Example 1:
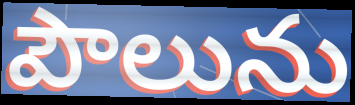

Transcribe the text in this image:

పౌలును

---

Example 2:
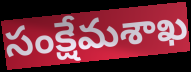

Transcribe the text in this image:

సంక్షేమశాఖ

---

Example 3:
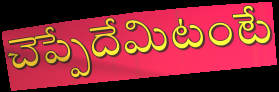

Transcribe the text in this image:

చెప్పేదేమిటంటే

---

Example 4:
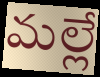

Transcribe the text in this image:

మల్లే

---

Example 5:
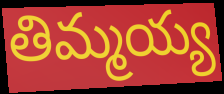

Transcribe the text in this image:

తిమ్మయ్య